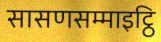
सासणसम्माइट्ठि